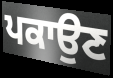
ਪਕਾਉਣ